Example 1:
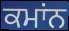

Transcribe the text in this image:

ਕਮਾਂਨ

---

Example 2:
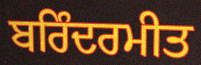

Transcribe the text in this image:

ਬਰਿੰਦਰਮੀਤ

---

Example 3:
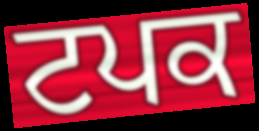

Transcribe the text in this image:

ਟਪਕ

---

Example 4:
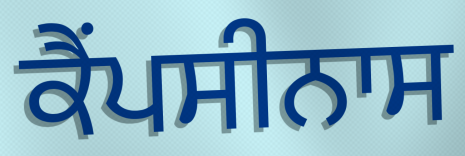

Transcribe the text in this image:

ਕੈਂਪਸੀਨਾਸ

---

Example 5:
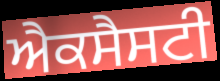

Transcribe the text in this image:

ਐਕਸੈਸਟੀ